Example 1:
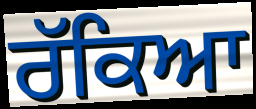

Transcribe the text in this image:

ਰੱਕਿਆ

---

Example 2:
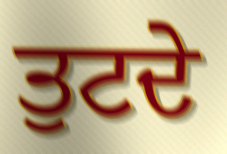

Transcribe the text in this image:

ਤੁਟਦੇ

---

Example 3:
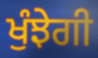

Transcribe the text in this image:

ਖੁੰਝੇਗੀ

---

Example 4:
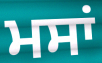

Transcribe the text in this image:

ਮਸਾਂ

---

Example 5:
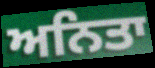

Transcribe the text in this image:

ਅਨਿਤਾ